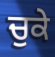
ਚੁਕੇ